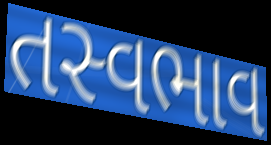
તસ્વભાવ